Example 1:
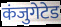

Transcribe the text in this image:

कंजुगेटेड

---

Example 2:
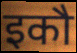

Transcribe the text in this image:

इकौ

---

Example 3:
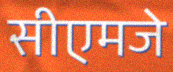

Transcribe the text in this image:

सीएमजे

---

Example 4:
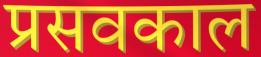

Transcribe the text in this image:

प्रसवकाल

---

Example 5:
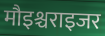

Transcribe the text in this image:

मौइश्चराइजर